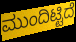
ಮುಂದಿಟ್ಟಿದೆ